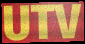
UTV